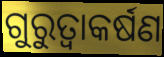
ଗୁରୁତ୍ଵାକର୍ଷଣ